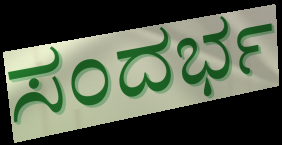
ಸಂದರ್ಭ